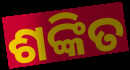
ଶଙ୍କିତ